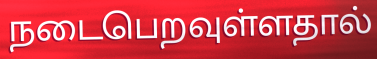
நடைபெறவுள்ளதால்